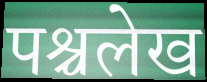
पश्चलेख